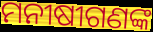
ମନୀଷୀଗଣଙ୍କ